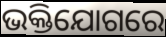
ଭକ୍ତିଯୋଗରେ